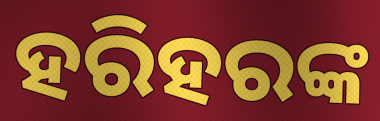
ହରିହରଙ୍କ